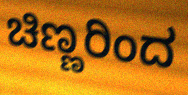
ಚಿಣ್ಣರಿಂದ